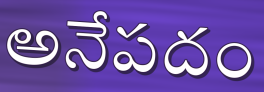
అనేపదం